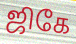
ஜிகே